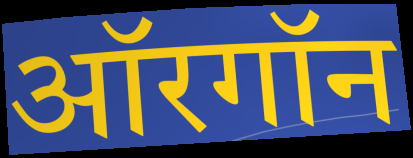
ऑरगॉन